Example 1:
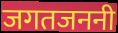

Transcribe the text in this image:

जगतजननी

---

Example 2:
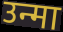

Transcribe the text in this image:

उन्मा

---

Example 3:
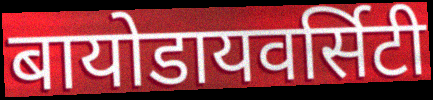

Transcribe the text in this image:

बायोडायवर्सिटी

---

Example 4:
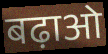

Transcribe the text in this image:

बढ़ाओ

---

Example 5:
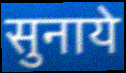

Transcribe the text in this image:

सुनाये